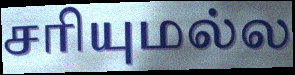
சரியுமல்ல